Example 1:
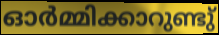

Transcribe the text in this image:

ഓർമ്മിക്കാറുണ്ടു്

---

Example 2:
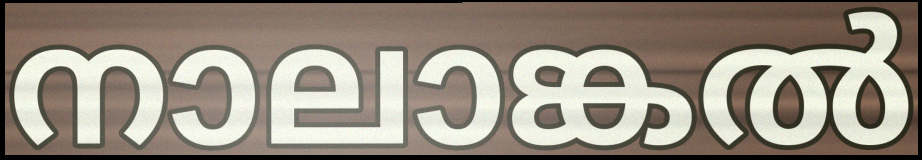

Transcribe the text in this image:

നാലാങ്കൽ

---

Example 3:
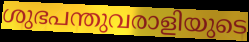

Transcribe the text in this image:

ശുഭപന്തുവരാളിയുടെ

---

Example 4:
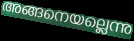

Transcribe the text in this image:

അങ്ങനെയല്ലെന്നു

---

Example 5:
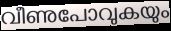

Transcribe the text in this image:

വീണുപോവുകയും